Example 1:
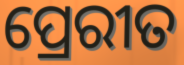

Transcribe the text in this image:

ପ୍ରେରୀତ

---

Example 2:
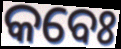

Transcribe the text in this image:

କବେଃ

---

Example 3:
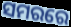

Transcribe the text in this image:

ସମରରେ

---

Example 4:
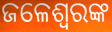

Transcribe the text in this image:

ଜଳେଶ୍ଵରଙ୍କ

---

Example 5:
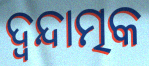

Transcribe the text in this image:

ଦ୍ଵନ୍ଦାତ୍ମକ